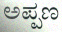
ಅಪ್ಪಣ